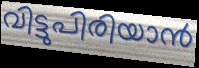
വിട്ടുപിരിയാൻ